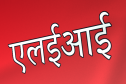
एलईआई